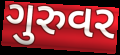
ગુરુવર